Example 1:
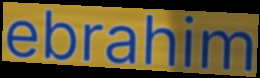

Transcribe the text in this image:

ebrahim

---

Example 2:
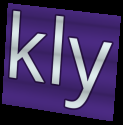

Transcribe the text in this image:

kly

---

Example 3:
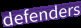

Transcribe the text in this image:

defenders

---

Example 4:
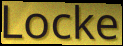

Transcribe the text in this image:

Locke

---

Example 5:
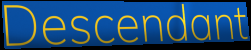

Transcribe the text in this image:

Descendant